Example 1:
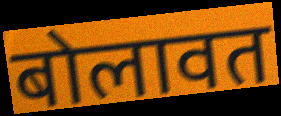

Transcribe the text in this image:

बोलावत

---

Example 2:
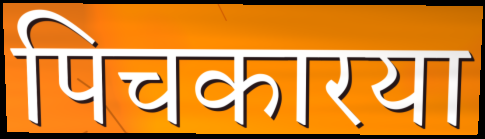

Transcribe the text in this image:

पिचकारया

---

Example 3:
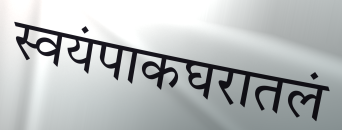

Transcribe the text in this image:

स्वयंपाकघरातलं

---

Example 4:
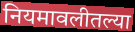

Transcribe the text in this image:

नियमावलीतल्या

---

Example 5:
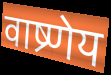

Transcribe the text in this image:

वाष्र्णेय